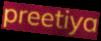
preetiya